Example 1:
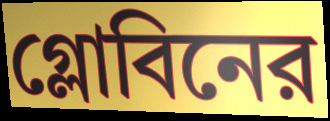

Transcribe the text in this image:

গ্লোবিনের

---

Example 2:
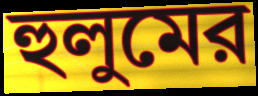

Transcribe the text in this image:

হুলুমের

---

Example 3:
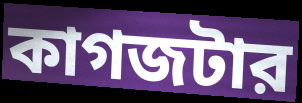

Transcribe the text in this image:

কাগজটার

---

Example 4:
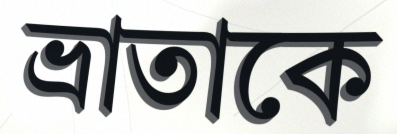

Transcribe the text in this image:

ভ্রাতাকে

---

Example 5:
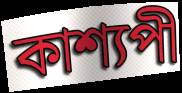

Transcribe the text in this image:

কাশ্যপী